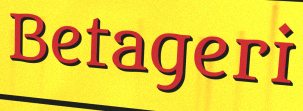
Betageri